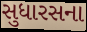
સુધારસના